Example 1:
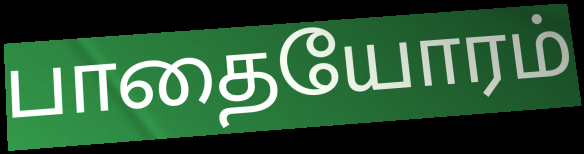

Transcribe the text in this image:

பாதையோரம்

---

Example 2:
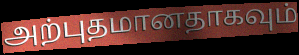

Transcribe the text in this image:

அற்புதமானதாகவும்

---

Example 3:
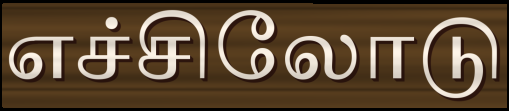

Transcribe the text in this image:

எச்சிலோடு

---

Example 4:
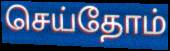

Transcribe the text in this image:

செய்தோம்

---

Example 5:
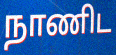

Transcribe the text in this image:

நாணிட